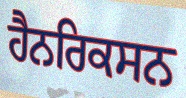
ਹੈਨਰਿਕਸਨ